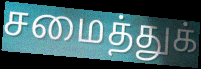
சமைத்துக்